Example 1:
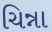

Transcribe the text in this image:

ચિન્ના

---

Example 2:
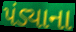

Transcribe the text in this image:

પંડ્યાના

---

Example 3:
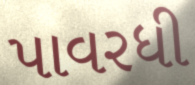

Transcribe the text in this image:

પાવરધી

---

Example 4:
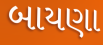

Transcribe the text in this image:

બાયણા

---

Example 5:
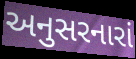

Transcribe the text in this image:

અનુસરનારાં